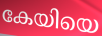
കേയിയെ